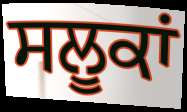
ਸਲੂਕਾਂ